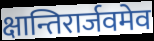
क्षान्तिरार्जवमेव